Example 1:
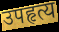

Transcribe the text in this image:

उपहृत्य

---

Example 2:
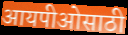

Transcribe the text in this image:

आयपीओसाठी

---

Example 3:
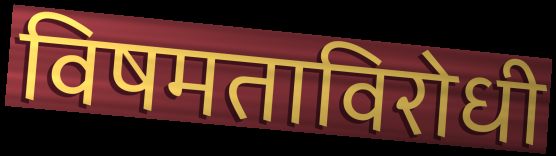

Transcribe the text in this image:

विषमताविरोधी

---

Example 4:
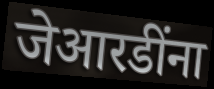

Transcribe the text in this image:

जेआरडींना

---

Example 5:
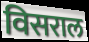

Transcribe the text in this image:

विसराल